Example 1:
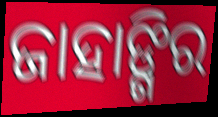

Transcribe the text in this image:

ଜାହାଙ୍ଗିର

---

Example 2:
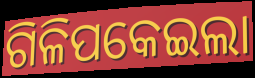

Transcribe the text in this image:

ଗିଳିପକେଇଲା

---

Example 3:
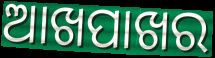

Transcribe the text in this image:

ଆଖପାଖର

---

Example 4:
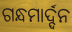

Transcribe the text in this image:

ଗନ୍ଧମାର୍ଦ୍ଦନ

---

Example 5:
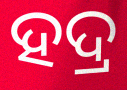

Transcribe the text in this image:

ହଦ୍ର